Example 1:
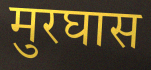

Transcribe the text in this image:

मुरघास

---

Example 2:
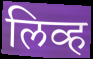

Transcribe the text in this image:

लिव्ह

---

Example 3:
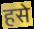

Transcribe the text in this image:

हसे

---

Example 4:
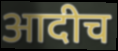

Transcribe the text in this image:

आदीच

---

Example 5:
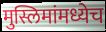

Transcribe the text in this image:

मुस्लिमांमध्येच